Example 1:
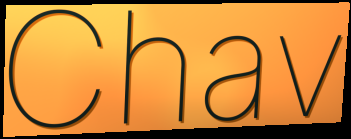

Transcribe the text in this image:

Chav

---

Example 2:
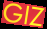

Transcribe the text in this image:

GIZ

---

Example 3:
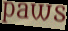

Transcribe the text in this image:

paws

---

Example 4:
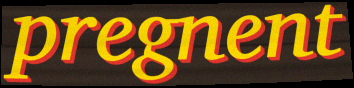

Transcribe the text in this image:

pregnent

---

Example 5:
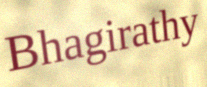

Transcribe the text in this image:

Bhagirathy